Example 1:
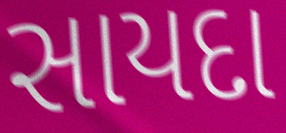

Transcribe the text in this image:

સાયદા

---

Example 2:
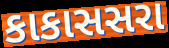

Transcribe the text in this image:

કાકાસસરા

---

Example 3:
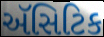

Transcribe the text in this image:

ઍસિટિક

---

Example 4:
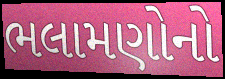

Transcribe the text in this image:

ભલામણોનો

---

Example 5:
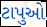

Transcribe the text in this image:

ટાપુઓ